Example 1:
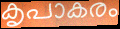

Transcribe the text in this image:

കൃപാകരം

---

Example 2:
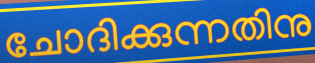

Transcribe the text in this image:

ചോദിക്കുന്നതിനു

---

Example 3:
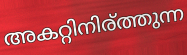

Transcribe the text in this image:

അകറ്റിനിര്ത്തുന്ന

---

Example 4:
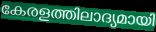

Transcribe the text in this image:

കേരളത്തിലാദ്യമായി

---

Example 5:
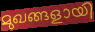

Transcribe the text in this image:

മുഖങ്ങളായി